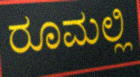
ರೂಮಲ್ಲಿ